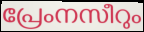
പ്രേംനസീറും